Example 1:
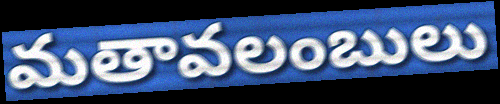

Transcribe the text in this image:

మతావలంబులు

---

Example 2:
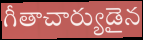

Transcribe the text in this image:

గీతాచార్యుడైన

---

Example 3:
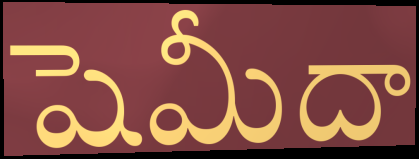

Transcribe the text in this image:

షెమీదా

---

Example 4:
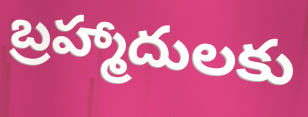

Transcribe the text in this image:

బ్రహ్మాదులకు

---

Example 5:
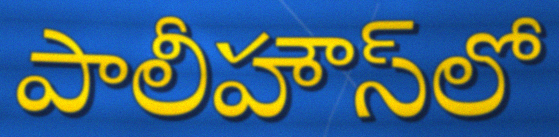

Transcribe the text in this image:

పాలీహౌస్‌లో